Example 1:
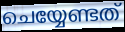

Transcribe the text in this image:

ചെയ്യേണ്ടത്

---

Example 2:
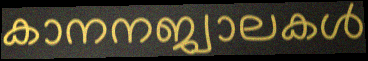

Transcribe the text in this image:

കാനനജ്വാലകൾ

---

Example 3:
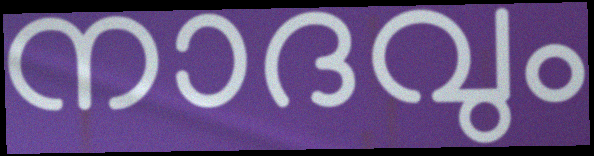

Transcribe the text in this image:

നാദവും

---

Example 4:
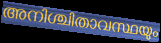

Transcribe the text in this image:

അനിശ്ചിതാവസ്ഥയും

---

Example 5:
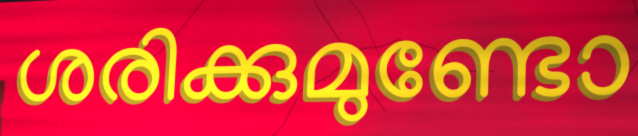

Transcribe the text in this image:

ശരിക്കുമുണ്ടോ